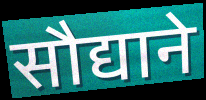
सौद्याने